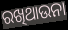
ରଖିଥାଉନା